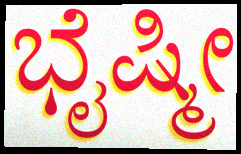
ಭೈಷ್ಮೀ